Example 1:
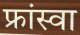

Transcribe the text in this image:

फ्रांस्वा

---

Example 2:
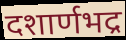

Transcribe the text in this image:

दशार्णभद्र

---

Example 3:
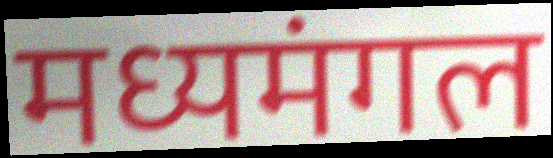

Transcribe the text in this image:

मध्यमंगल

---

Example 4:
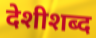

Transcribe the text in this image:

देशीशब्द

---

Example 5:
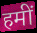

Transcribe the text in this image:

हमीं